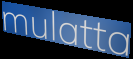
mulatta